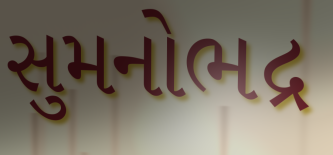
સુમનોભદ્ર